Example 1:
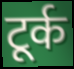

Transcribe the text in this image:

टूर्क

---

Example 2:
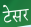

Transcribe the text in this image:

टेसर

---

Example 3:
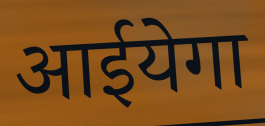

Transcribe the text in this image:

आईयेगा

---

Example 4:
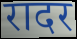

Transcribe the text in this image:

रादर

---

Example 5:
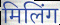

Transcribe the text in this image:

मिलिंग